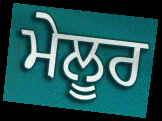
ਮੇਲੂਰ